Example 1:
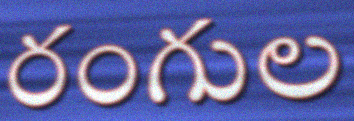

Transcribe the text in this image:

రంగుల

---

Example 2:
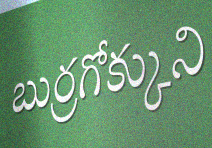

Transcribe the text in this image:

బుర్రగోక్కుని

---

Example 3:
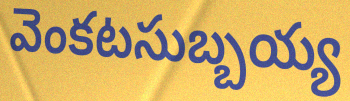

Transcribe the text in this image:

వెంకటసుబ్బయ్య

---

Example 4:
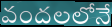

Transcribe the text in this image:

వందలలోనే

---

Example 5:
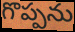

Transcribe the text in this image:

గొప్పను